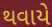
થવાયે